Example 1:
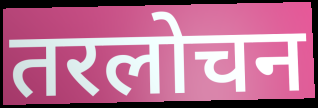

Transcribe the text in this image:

तरलोचन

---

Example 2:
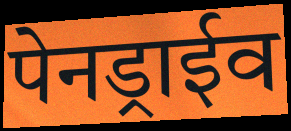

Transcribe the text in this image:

पेनड्राईव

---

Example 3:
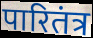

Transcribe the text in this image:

पारितंत्र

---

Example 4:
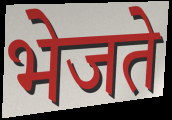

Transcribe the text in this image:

भेजते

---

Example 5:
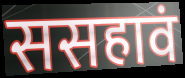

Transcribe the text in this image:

ससहावं